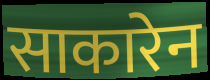
साकारेन